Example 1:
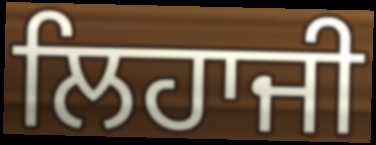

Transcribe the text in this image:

ਲਿਹਾਜੀ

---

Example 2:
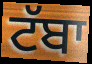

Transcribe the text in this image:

ਟੱਬਾ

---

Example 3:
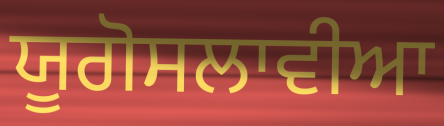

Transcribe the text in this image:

ਯੂਗੋਸਲਾਵੀਆ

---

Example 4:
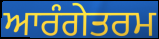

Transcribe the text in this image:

ਆਰੰਗੇਤਰਮ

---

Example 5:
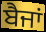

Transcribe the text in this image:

ਬੈਜਾਂ